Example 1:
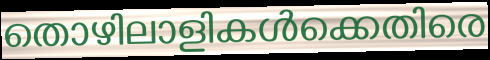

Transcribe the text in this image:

തൊഴിലാളികൾക്കെതിരെ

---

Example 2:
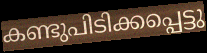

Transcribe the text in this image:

കണ്ടുപിടിക്കപ്പെട്ടു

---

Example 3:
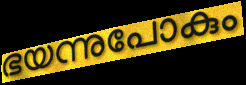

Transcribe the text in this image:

ഭയന്നുപോകും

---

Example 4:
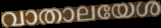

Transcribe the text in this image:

വാതാലയേശ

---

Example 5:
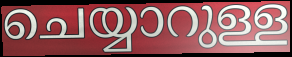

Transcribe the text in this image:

ചെയ്യാറുള്ള